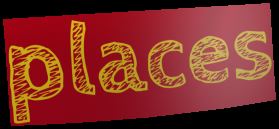
places